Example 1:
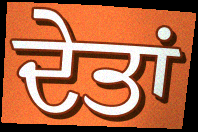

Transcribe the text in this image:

ਦੇਤਾਂ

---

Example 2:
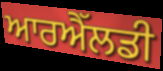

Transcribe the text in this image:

ਆਰਐੱਲਡੀ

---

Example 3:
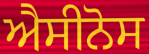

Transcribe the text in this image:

ਐਸੀਨੋਸ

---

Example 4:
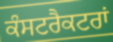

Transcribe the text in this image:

ਕੰਸਟਰੈਕਟਰਾਂ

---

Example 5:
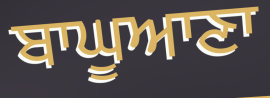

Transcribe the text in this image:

ਬਾਘੂਆਣਾ